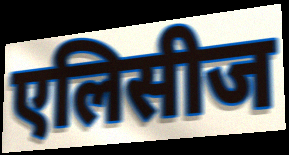
एलिसीज